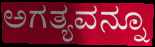
ಅಗತ್ಯವನ್ನೂ